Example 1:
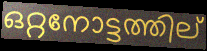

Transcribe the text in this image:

ഒറ്റനോട്ടത്തില്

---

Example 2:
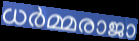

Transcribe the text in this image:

ധർമ്മരാജാ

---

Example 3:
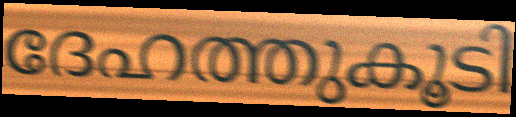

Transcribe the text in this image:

ദേഹത്തുകൂടി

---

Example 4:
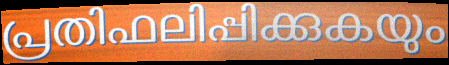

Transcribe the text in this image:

പ്രതിഫലിപ്പിക്കുകയും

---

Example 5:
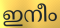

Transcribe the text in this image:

ഇനീം